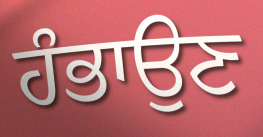
ਹੰਭਾਉਣ